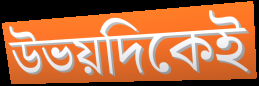
উভয়দিকেই